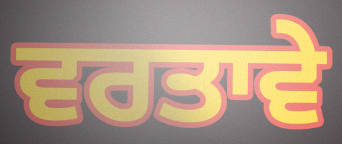
ਵਰਤਾਵੇ